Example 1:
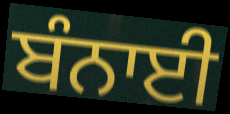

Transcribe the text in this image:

ਬੰਨਾਈ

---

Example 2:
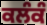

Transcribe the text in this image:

ਕਲੰਕੰ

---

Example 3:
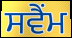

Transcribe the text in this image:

ਸਵੈਂਮ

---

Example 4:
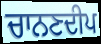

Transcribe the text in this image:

ਚਾਨਣਦੀਪ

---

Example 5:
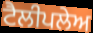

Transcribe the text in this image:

ਟੈਲੀਪਲੇਅ